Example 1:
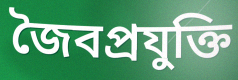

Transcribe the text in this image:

জৈবপ্রযুক্তি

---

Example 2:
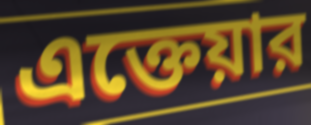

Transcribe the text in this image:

এক্তেয়ার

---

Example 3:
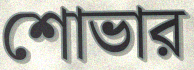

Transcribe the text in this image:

শোভার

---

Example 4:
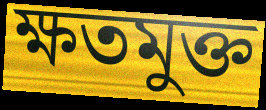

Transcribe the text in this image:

ক্ষতমুক্ত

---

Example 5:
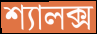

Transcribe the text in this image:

শ্যালক্স